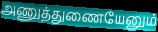
அணுத்துணையேனும்